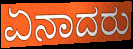
ಏನಾದರು